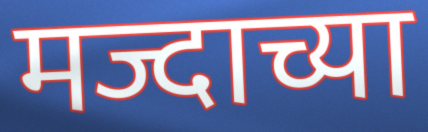
मज्दाच्या